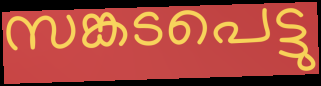
സങ്കടപെട്ടു